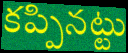
కప్పినట్టు